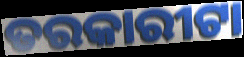
ତରକାରୀଟା